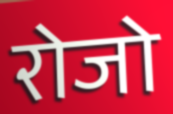
रोजो